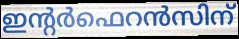
ഇന്റർഫെറൻസിന്